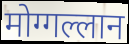
मोग्गल्लान